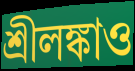
শ্রীলঙ্কাও